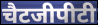
चैटजीपीटी